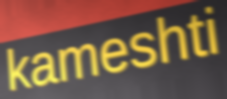
kameshti